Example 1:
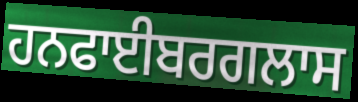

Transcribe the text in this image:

ਹਨਫਾਈਬਰਗਲਾਸ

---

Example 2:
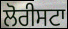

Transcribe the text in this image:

ਲੋਰੀਸਟਾ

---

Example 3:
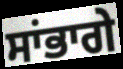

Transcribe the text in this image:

ਸਾਂਭਾਗੇ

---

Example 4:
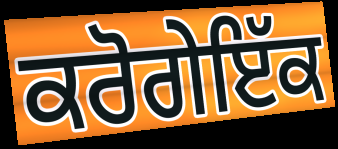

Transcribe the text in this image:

ਕਰੋਗੇਇੱਕ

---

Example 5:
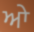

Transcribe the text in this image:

ਆੇ